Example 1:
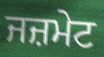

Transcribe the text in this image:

ਜਜ਼ਮੇਟ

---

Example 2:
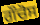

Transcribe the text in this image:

ਗੌਚੋਸ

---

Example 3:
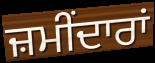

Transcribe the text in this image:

ਜ਼ਮੀਂਦਾਰਾਂ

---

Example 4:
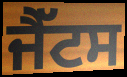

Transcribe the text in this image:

ਜੈੱਟਸ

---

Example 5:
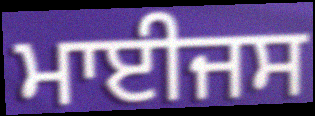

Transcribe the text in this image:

ਮਾਈਜਸ